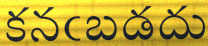
కనఁబడదు